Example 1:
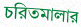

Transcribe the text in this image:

চরিতমালার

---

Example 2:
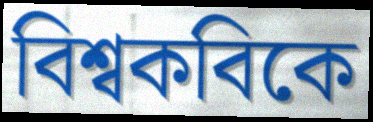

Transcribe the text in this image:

বিশ্বকবিকে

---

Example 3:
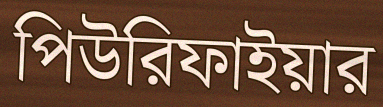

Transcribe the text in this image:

পিউরিফাইয়ার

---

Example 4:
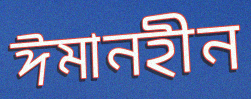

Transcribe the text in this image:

ঈমানহীন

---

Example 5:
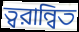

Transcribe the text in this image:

ত্বরান্বিত